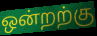
ஒன்றற்கு